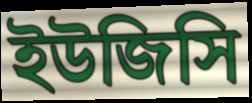
ইউজিসি